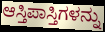
ಆಸ್ತಿಪಾಸ್ತಿಗಳನ್ನು